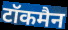
टॉकमैन